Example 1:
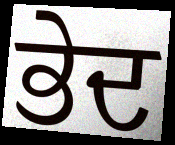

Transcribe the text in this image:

ਭੇਦ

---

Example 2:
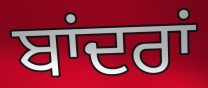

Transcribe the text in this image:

ਬਾਂਦਰਾਂ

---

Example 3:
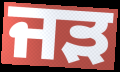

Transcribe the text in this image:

ਜੜ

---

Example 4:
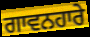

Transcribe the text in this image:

ਗਾਵਨਹਾਰੇ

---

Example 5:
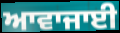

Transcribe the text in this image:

ਆਵਾਜਾਈ